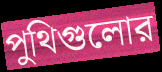
পুথিগুলোর